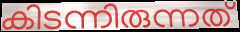
കിടന്നിരുന്നത്